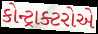
કોન્ટ્રાક્ટરોએ